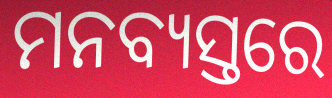
ମନବ୍ୟସ୍ତରେ